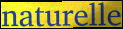
naturelle